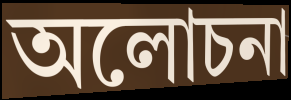
অলোচনা